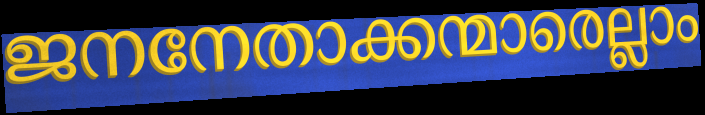
ജനനേതാക്കന്മാരെല്ലാം